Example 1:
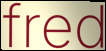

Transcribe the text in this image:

fred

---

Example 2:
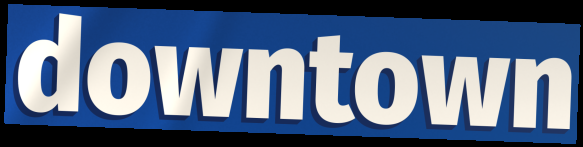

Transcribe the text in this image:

downtown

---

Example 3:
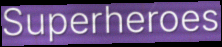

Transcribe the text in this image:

Superheroes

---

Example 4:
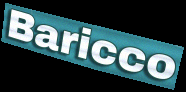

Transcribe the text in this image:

Baricco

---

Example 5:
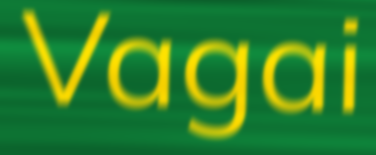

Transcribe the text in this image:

Vagai